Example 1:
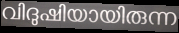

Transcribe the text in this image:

വിദുഷിയായിരുന്ന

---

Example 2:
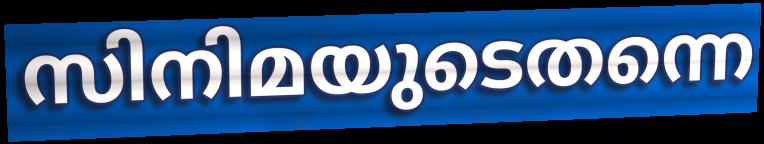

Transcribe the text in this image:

സിനിമയുടെതന്നെ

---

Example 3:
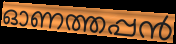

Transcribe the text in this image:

ഓണത്തപ്പൻ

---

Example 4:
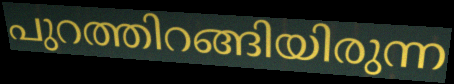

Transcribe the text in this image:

പുറത്തിറങ്ങിയിരുന്ന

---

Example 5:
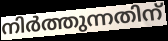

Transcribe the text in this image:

നിർത്തുന്നതിന്